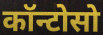
कॉन्टोसो